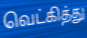
வெட்கித்து